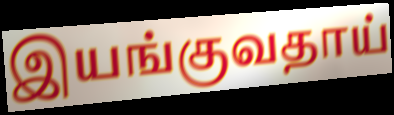
இயங்குவதாய்